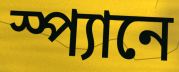
স্প্যানে